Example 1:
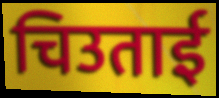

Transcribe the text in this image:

चिउताई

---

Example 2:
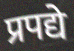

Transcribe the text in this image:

प्रपद्ये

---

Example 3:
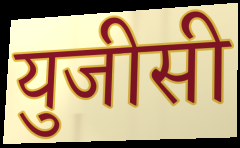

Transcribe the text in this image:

युजीसी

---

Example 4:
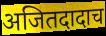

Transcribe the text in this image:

अजितदादाच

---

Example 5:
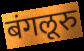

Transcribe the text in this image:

बंगलूरु